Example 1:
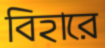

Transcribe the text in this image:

বিহারে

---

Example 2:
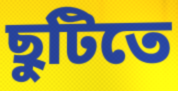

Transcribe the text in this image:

ছুটিতে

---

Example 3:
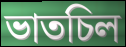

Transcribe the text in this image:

ভাতচিল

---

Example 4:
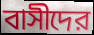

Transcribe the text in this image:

বাসীদের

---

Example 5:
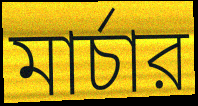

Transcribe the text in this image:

মার্চার